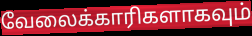
வேலைக்காரிகளாகவும்